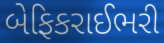
બેફિકરાઈભરી